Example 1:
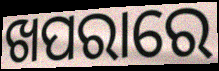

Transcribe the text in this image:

ଖପରାରେ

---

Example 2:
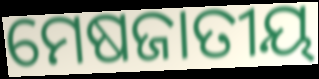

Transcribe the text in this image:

ମେଷଜାତୀୟ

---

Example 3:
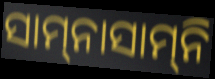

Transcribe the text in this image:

ସାମ୍‍ନାସାମ୍‍ନି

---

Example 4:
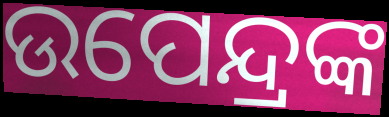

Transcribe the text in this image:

ଉପେନ୍ଦ୍ରଙ୍କ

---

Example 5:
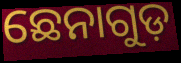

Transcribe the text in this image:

ଛେନାଗୁଡ଼